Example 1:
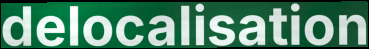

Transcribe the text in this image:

delocalisation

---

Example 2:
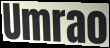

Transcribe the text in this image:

Umrao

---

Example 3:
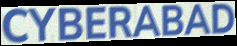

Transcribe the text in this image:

CYBERABAD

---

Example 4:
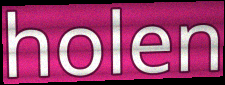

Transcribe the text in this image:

holen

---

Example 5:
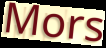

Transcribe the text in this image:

Mors